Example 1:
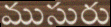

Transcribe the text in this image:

ముసురు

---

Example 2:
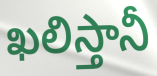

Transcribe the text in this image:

ఖలిస్తానీ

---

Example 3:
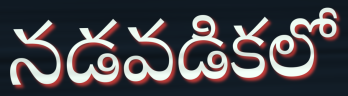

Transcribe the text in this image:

నడవడికలో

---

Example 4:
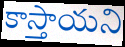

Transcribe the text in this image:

కాస్తాయని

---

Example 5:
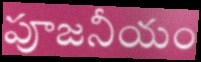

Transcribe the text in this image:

పూజనీయం